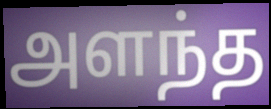
அளந்த